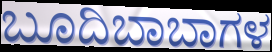
ಬೂದಿಬಾಬಾಗಳ